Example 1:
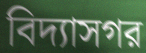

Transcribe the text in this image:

বিদ্যাসগর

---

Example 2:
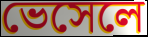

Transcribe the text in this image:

ভেসেলে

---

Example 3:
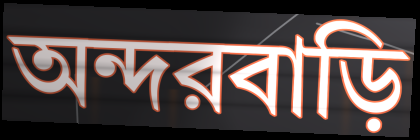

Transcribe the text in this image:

অন্দরবাড়ি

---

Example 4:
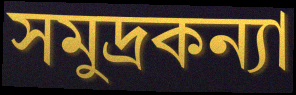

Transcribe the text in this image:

সমুদ্রকন্যা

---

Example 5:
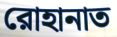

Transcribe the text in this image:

রোহানাত